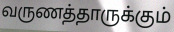
வருணத்தாருக்கும்